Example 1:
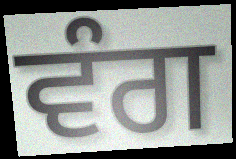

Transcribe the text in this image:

ਵੰਗ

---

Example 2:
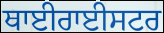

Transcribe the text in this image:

ਥਾਈਰਾਈਸਟਰ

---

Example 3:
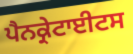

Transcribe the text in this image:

ਪੈਨਕ੍ਰੇਟਾਈਟਸ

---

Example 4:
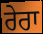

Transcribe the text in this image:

ਰੇਰਾ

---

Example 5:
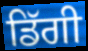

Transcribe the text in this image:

ਡਿੱਗੀ